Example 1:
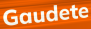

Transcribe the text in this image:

Gaudete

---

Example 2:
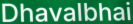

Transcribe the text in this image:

Dhavalbhai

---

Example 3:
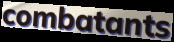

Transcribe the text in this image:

combatants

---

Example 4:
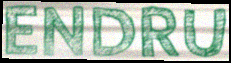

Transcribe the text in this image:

ENDRU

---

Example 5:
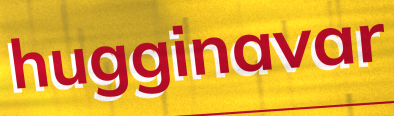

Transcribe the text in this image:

hugginavar